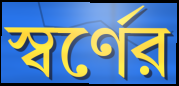
স্বর্ণের